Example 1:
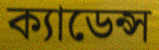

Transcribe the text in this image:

ক্যাডেন্স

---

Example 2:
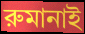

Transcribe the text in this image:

রুমানাই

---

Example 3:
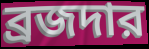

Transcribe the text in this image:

ব্রজদার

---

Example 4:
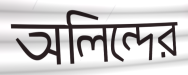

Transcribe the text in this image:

অলিন্দের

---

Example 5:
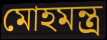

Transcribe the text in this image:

মোহমন্ত্র